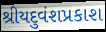
શ્રીયદુવંશપ્રકાશ